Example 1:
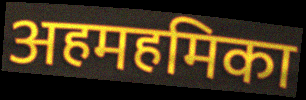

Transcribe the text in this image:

अहमहमिका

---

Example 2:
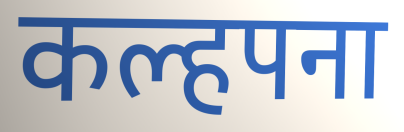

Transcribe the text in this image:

कल्हपना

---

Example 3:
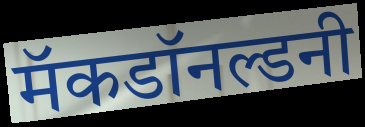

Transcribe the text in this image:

मॅकडॉनल्डनी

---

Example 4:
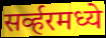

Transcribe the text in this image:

सर्व्हरमध्ये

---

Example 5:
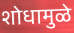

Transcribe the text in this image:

शोधामुळे